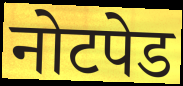
नोटपेड